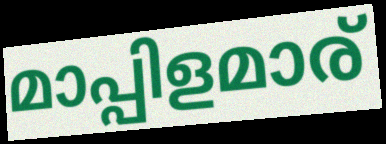
മാപ്പിളമാര്